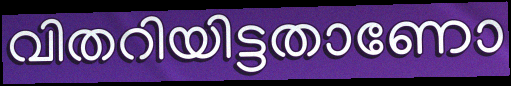
വിതറിയിട്ടതാണോ